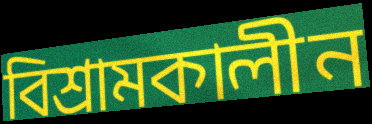
বিশ্রামকালীন